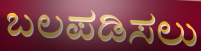
ಬಲಪಡಿಸಲು